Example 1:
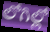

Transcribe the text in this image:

లోగిల్లో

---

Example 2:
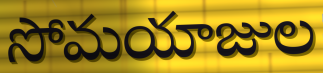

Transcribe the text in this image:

సోమయాజుల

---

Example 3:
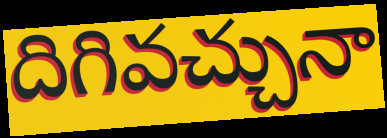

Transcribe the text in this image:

దిగివచ్చునా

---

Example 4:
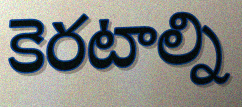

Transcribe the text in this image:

కెరటాల్ని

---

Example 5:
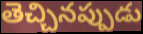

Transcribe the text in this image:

తెచ్చినప్పుడు